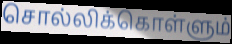
சொல்லிக்கொள்ளும்